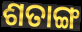
ଶତାଙ୍ଗ